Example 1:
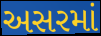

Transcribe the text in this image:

અસરમાં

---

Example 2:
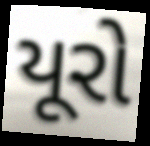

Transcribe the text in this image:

યૂરો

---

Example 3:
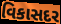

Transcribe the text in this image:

વિકાસદર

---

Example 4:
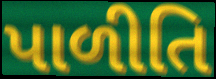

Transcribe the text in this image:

પાળીતિ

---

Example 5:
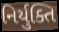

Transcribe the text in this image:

નિર્યુક્તિ